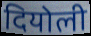
दियोली